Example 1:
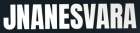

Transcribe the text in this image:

JNANESVARA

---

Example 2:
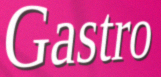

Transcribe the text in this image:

Gastro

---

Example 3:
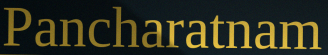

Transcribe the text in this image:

Pancharatnam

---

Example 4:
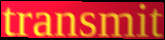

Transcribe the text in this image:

transmit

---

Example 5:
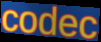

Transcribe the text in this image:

codec